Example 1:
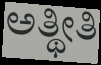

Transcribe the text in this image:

ಅತ್ಥೀತಿ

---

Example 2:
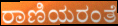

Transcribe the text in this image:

ರಾಣಿಯರಂತೆ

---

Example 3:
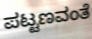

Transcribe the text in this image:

ಪಟ್ಟಣವಂತೆ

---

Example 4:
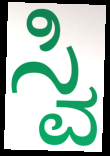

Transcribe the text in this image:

ಸ್ವಿ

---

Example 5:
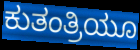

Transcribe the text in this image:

ಕುತಂತ್ರಿಯೂ